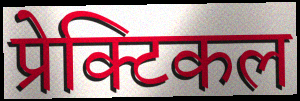
प्रेक्टिकल